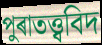
পুৰাতত্ত্ববিদ